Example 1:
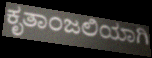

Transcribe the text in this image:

ಕೃತಾಂಜಲಿಯಾಗಿ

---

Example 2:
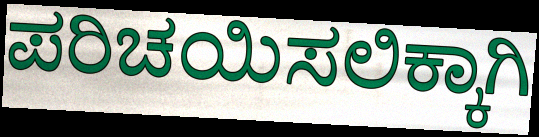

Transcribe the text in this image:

ಪರಿಚಯಿಸಲಿಕ್ಕಾಗಿ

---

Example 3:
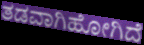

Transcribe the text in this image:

ತಡವಾಗಿಹೋಗಿದೆ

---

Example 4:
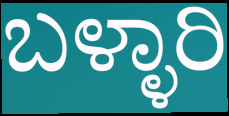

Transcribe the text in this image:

ಬಳ್ಳಾರಿ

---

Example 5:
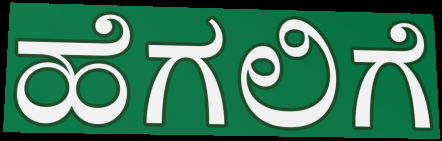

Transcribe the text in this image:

ಹೆಗಲಿಗೆ